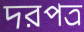
দরপত্র